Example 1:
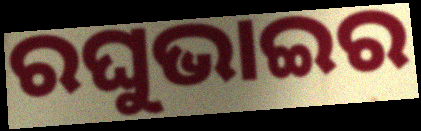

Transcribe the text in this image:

ରଘୁଭାଇର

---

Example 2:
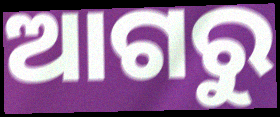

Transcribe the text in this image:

ଆଗରୁ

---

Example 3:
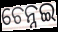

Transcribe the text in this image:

ଚେନ୍ନଇ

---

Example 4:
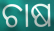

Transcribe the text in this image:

ଚାଷ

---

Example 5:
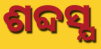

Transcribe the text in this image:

ଶବ୍ଦସ୍ଯ